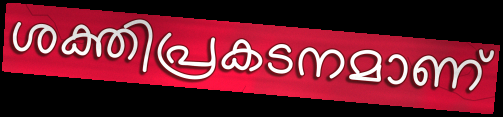
ശക്തിപ്രകടനമാണ്